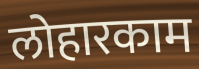
लोहारकाम